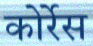
कोर्रेस